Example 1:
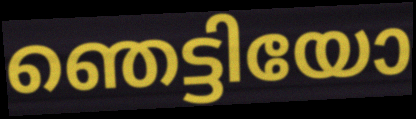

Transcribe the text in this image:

ഞെട്ടിയോ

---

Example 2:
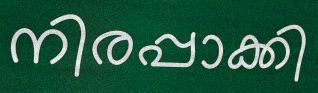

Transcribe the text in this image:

നിരപ്പാക്കി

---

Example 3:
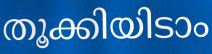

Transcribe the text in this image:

തൂക്കിയിടാം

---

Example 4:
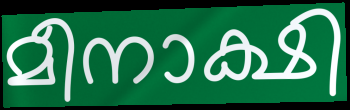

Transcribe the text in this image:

മീനാക്ഷി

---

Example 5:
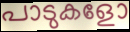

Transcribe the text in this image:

പാടുകളോ